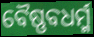
ବୈଷ୍ଣବଧର୍ମ୍ମ